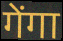
गेंगा